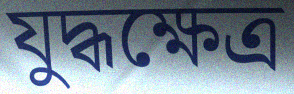
যুদ্ধক্ষেত্র